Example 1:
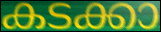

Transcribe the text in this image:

കടക്കാ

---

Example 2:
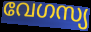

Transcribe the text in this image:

വേഗസ്യ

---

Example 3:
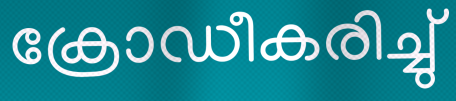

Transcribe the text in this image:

ക്രോഡീകരിച്ചു്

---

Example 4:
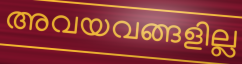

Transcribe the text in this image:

അവയവങ്ങളില്ല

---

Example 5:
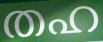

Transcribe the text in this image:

തഹ